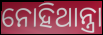
ନୋହିଥାନ୍ତ୍ରା